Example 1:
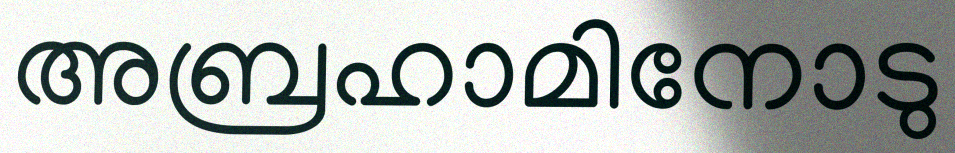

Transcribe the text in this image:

അബ്രഹാമിനോടു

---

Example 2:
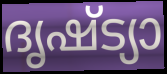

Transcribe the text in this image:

ദൃഷ്ട്യാ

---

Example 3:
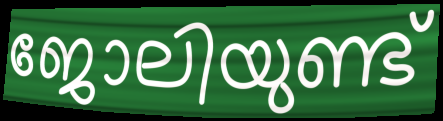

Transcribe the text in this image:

ജോലിയുണ്ട്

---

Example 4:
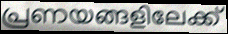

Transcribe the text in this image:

പ്രണയങ്ങളിലേക്ക്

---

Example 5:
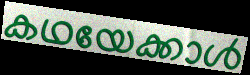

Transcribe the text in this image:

കഥയേക്കാൾ